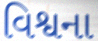
વિશ્વના